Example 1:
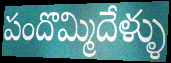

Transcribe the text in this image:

పందొమ్మిదేళ్ళు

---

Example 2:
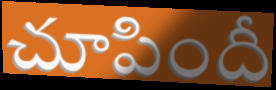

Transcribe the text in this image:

చూపిందీ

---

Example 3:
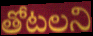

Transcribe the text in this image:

తోటలని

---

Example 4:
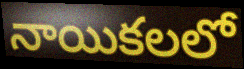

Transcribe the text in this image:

నాయికలలో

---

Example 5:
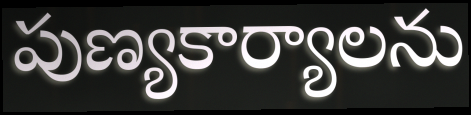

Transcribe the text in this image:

పుణ్యకార్యాలను